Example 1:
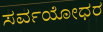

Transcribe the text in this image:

ಸರ್ವಯೋಧರ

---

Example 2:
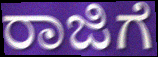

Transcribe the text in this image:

ರಾಜಿಗೆ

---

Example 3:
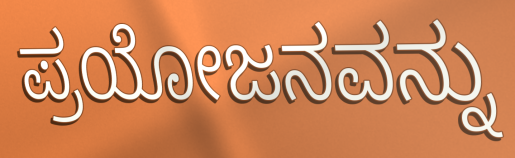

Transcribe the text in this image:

ಪ್ರಯೋಜನವನ್ನು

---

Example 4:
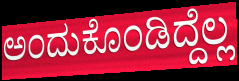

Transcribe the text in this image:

ಅಂದುಕೊಂಡಿದ್ದೆಲ್ಲ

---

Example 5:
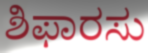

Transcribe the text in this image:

ಶಿಫಾರಸು